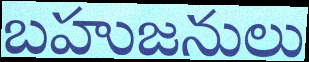
బహుజనులు